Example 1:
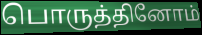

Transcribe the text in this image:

பொருத்தினோம்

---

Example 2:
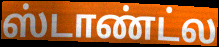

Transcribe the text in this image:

ஸ்டாண்ட்ல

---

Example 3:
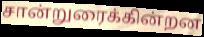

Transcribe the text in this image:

சான்றுரைக்கின்றன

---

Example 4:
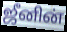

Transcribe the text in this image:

ஜீனின்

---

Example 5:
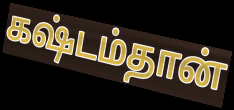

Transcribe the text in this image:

கஷ்டம்தான்